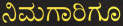
ನಿಮಗಾರಿಗೂ